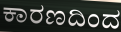
ಕಾರಣದಿಂದ